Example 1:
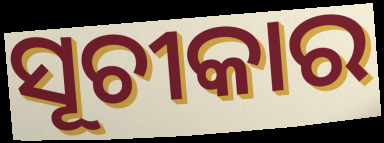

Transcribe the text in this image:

ସୂଚୀକାର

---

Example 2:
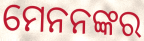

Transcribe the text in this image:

ମେନନଙ୍କର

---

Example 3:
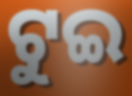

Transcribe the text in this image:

ଟୁଇ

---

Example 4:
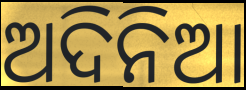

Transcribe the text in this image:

ଅଦିନିଆ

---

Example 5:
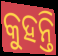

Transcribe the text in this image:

କୁହନ୍ତି